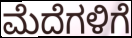
ಮೆದೆಗಳಿಗೆ